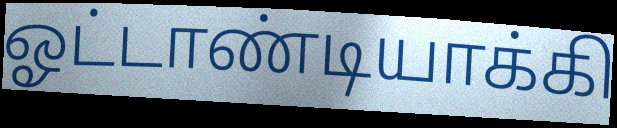
ஓட்டாண்டியாக்கி